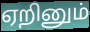
ஏறினும்